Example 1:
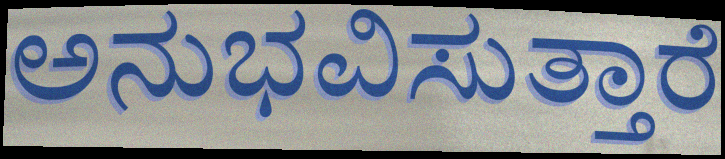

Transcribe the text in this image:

ಅನುಭವಿಸುತ್ತಾರೆ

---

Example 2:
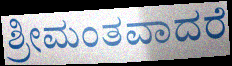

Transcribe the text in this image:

ಶ್ರೀಮಂತವಾದರೆ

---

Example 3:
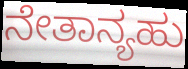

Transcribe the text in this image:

ನೇತಾನ್ಯಹು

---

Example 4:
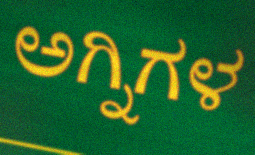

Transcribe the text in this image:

ಅಗ್ನಿಗಳ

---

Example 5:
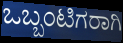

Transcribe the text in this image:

ಒಬ್ಬಂಟಿಗರಾಗಿ